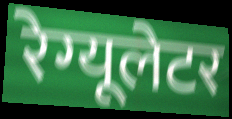
रेग्यूलेटर